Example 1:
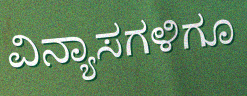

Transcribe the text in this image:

ವಿನ್ಯಾಸಗಳಿಗೂ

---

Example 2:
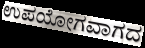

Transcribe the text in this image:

ಉಪಯೋಗವಾಗದ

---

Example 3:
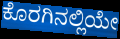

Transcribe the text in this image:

ಕೊರಗಿನಲ್ಲಿಯೇ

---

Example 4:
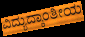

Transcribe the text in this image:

ವಿದ್ಯುದ್ಕಾಂತೀಯ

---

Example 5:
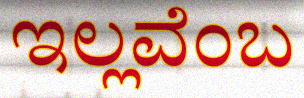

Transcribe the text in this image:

ಇಲ್ಲವೆಂಬ